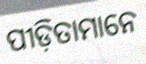
ପୀଡ଼ିତାମାନେ